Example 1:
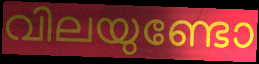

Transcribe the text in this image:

വിലയുണ്ടോ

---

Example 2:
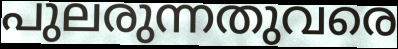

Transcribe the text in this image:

പുലരുന്നതുവരെ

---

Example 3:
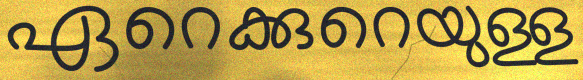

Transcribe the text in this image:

ഏറെക്കുറെയുള്ള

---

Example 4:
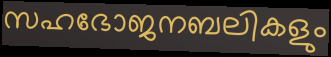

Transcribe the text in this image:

സഹഭോജനബലികളും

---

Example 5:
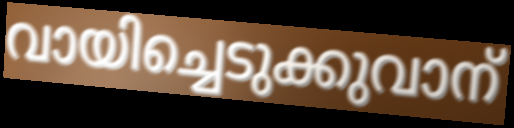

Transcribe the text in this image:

വായിച്ചെടുക്കുവാന്